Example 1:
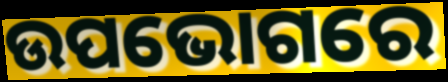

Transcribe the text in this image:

ଉପଭୋଗରେ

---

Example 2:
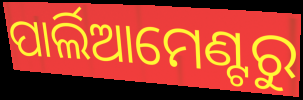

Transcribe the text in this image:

ପାର୍ଲିଆମେଣ୍ଟରୁ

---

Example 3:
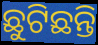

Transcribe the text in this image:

ଛୁଟିଛନ୍ତି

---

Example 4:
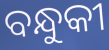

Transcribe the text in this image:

ବନ୍ଧୁକୀ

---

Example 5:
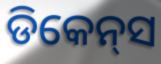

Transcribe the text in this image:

ଡିକେନ୍‌ସ